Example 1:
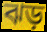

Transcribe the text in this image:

ঝড়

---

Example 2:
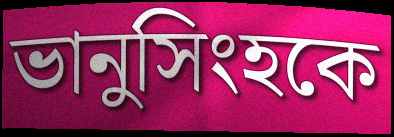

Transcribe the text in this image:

ভানুসিংহকে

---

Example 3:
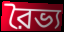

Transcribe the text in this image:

রৈভ্য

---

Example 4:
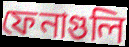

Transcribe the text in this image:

ফেনাগুলি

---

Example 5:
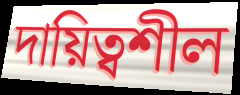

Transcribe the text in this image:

দায়িত্বশীল